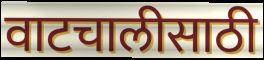
वाटचालीसाठी